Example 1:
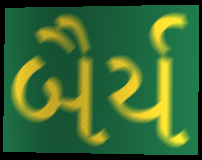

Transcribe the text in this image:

બૈર્ય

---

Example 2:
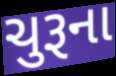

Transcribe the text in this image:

ચુરૂના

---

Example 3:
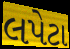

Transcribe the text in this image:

લપેટા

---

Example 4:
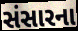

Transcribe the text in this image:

સંસારના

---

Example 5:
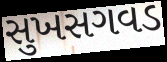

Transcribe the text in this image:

સુખસગવડ